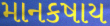
માનકષાય